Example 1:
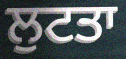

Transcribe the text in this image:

ਲੁਟਤਾ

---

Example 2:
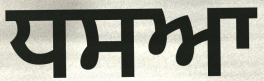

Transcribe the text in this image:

ਧਸਆ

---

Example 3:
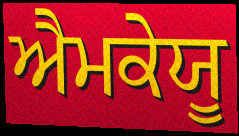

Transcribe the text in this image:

ਐਮਕੇਯੂ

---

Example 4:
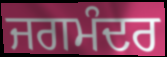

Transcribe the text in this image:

ਜਗਮੰਦਰ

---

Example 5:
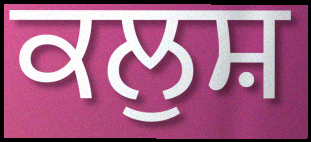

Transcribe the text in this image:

ਕਲੁਸ਼